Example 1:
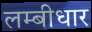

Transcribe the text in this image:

लम्बीधार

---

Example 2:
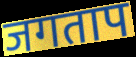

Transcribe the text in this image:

जगताप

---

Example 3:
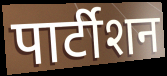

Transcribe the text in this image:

पार्टीशन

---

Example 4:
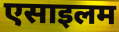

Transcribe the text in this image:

एसाइलम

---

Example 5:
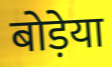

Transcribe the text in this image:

बोड़ेया